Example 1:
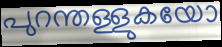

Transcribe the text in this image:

പുറന്തള്ളുകയോ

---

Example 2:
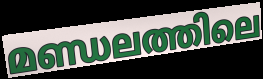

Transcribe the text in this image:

മണ്ഡലത്തിലെ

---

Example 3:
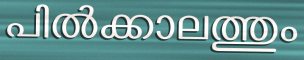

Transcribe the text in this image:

പിൽക്കാലത്തും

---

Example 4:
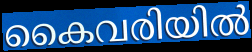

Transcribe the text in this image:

കൈവരിയിൽ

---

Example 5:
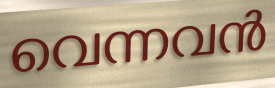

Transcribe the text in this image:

വെന്നവൻ